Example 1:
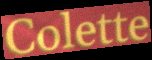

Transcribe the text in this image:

Colette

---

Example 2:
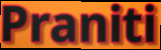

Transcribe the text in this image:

Praniti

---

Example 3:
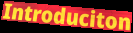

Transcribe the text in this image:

Introduciton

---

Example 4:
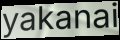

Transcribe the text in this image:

yakanai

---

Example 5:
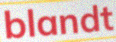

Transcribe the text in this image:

blandt